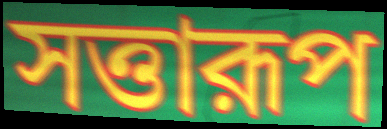
সত্তারূপ